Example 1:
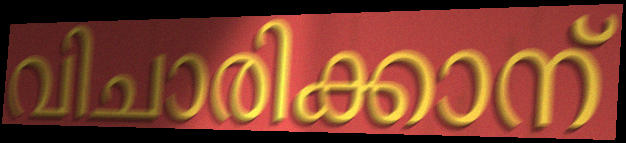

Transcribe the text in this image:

വിചാരിക്കാന്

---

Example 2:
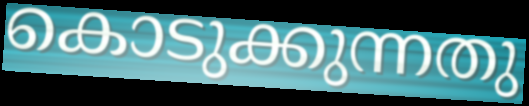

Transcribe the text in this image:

കൊടുക്കുന്നതു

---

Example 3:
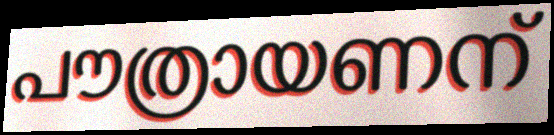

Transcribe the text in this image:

പൗത്രായണന്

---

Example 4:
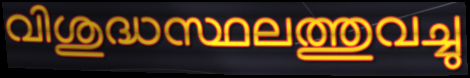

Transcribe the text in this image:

വിശുദ്ധസ്ഥലത്തുവച്ചു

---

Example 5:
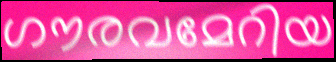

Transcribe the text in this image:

ഗൗരവമേറിയ